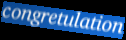
congretulation